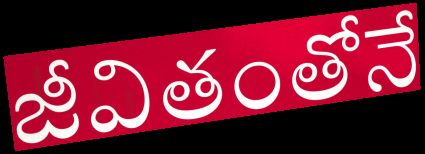
జీవితంతోనే